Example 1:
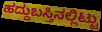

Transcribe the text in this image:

ಹದ್ದುಬಸ್ತಿನಲ್ಲಿಟ್ಟು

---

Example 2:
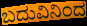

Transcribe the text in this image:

ಬದುವಿನಿಂದ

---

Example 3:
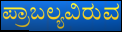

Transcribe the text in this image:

ಪ್ರಾಬಲ್ಯವಿರುವ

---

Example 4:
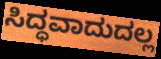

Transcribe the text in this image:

ಸಿದ್ಧವಾದುದಲ್ಲ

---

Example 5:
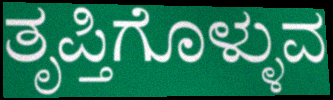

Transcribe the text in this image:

ತೃಪ್ತಿಗೊಳ್ಳುವ